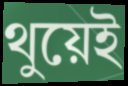
থুয়েই